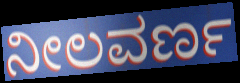
ನೀಲವರ್ಣ